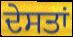
ਦੇਸਤਾਂ